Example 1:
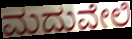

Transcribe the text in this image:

ಮದುವೇಲಿ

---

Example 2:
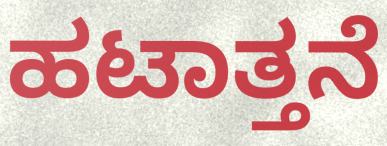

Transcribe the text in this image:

ಹಟಾತ್ತನೆ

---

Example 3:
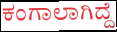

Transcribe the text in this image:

ಕಂಗಾಲಾಗಿದ್ದೆ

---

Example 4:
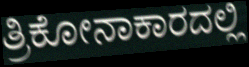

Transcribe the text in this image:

ತ್ರಿಕೋನಾಕಾರದಲ್ಲಿ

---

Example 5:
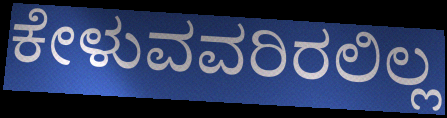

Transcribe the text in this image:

ಕೇಳುವವರಿರಲಿಲ್ಲ